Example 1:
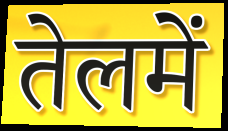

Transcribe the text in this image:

तेलमें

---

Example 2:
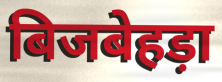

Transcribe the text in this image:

बिजबेहड़ा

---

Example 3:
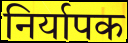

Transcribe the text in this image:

निर्यापक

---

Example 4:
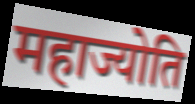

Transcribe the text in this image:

महाज्योति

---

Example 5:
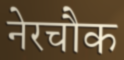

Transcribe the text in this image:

नेरचौक